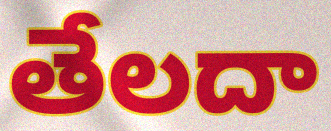
తేలదా